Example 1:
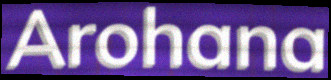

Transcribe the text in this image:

Arohana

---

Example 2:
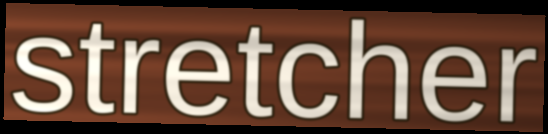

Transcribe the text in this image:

stretcher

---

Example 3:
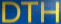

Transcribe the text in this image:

DTH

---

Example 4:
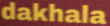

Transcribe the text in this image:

dakhala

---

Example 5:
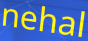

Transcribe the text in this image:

nehal